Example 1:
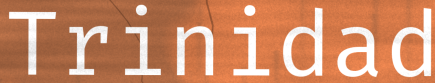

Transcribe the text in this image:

Trinidad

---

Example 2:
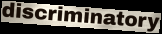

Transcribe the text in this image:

discriminatory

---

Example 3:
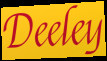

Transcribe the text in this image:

Deeley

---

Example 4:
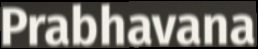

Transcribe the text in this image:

Prabhavana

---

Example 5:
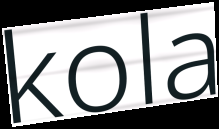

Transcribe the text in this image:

kola